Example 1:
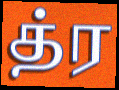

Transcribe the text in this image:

த்ர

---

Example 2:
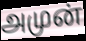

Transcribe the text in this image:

அமுன்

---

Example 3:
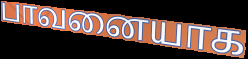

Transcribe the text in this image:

பாவனையாக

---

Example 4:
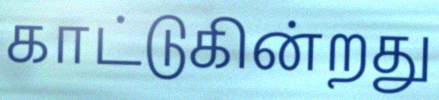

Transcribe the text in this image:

காட்டுகின்றது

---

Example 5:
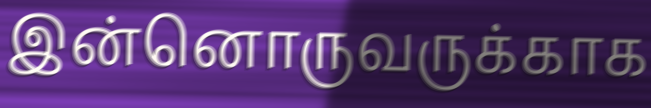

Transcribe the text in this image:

இன்னொருவருக்காக